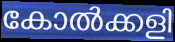
കോൽക്കളി